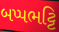
બપ્પભટ્ટિ